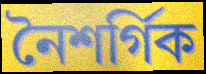
নৈশৰ্গিক